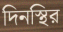
দিনস্থির